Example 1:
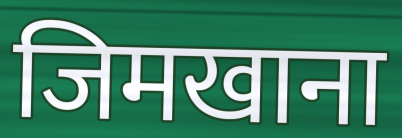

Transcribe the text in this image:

जिमखाना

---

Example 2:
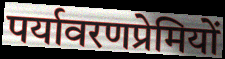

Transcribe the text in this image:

पर्यावरणप्रेमियों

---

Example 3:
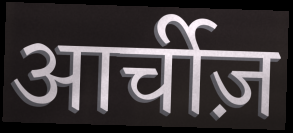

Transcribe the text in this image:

आर्चीज़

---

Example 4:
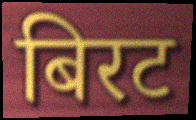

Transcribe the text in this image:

बिरट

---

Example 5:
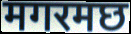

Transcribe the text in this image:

मगरमछ